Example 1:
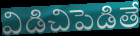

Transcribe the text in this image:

విడిచిపెడితే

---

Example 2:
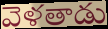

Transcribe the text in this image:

వెళతాడు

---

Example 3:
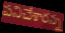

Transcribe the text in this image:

పనిచేశారన్న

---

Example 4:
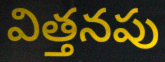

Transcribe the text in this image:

విత్తనపు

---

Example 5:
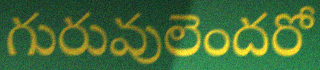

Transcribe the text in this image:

గురువులెందరో